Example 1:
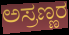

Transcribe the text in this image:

ಅಸ್ರಣ್ಣರ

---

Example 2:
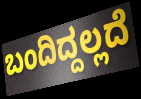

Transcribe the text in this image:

ಬಂದಿದ್ದಲ್ಲದೆ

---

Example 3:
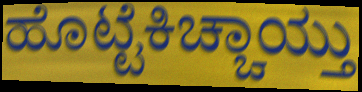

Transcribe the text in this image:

ಹೊಟ್ಟೆಕಿಚ್ಚಾಯ್ತು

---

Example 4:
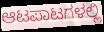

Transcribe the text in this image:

ಆಟಪಾಟಗಳಲ್ಲಿ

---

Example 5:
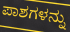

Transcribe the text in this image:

ಪಾಶಗಳನ್ನು